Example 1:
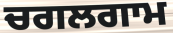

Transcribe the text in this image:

ਚਗਲਗਾਮ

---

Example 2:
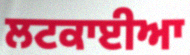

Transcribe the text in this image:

ਲਟਕਾਈਆ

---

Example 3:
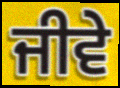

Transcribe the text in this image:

ਜੀਵੇ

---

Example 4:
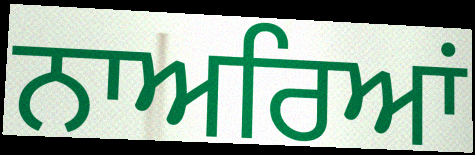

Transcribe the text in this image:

ਨਾਅਰਿਆਂ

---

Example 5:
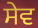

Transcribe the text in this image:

ਸੇਵ